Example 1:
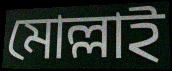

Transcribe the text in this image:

মোল্লাই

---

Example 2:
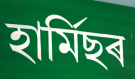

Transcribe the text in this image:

হাৰ্মিছৰ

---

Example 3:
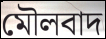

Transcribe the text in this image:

মৌলবাদ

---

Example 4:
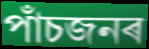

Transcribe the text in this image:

পাঁচজনৰ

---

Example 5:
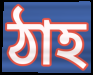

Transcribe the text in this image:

ঠাহ